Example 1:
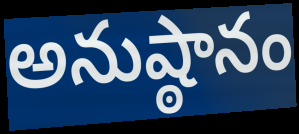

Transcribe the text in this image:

అనుష్ఠానం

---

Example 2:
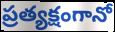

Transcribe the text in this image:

ప్రత్యక్షంగానో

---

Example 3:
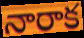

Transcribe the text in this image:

నారాక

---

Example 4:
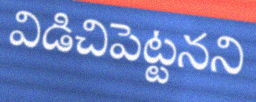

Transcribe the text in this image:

విడిచిపెట్టనని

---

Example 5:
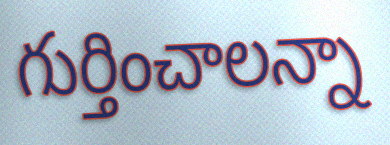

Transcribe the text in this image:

గుర్తించాలన్నా